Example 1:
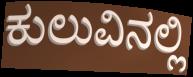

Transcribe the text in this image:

ಕುಲುವಿನಲ್ಲಿ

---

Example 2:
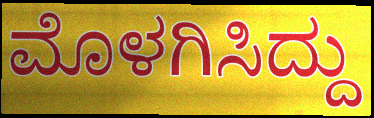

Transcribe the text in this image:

ಮೊಳಗಿಸಿದ್ದು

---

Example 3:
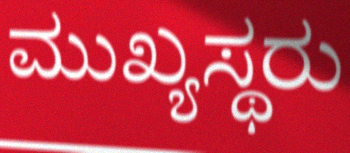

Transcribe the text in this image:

ಮುಖ್ಯಸ್ಥರು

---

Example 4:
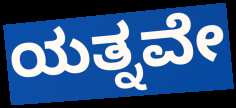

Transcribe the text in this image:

ಯತ್ನವೇ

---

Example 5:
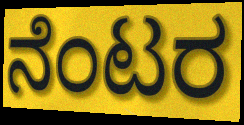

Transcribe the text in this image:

ನೆಂಟರ